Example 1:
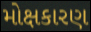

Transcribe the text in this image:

મોક્ષકારણ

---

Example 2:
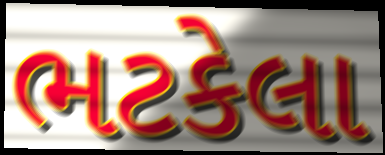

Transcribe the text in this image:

ભટકેલા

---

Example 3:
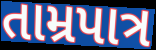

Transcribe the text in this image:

તામ્રપાત્ર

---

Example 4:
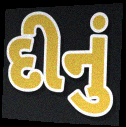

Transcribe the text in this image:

દીનું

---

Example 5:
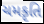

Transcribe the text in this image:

ચમકૃતિ